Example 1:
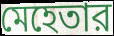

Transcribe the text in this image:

মেহেতার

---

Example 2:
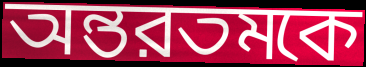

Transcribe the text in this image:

অন্তরতমকে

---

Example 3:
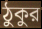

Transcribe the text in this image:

ঠুকুর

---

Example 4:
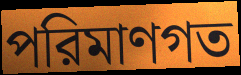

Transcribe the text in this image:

পরিমাণগত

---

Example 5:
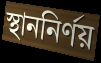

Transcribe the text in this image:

স্থাননির্ণয়